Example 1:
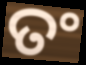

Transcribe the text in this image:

ତଂ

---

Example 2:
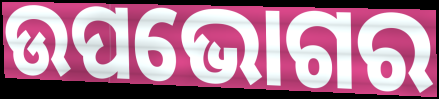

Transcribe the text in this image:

ଉପଭୋଗର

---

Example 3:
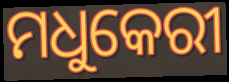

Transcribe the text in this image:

ମଧୁକେରୀ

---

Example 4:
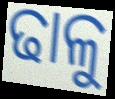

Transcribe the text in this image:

ଢାଳୁ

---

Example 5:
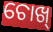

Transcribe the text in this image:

ଚୋଖ୍